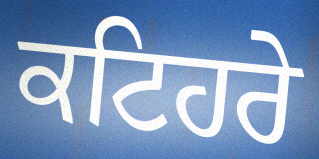
ਕਟਿਹਰੇ